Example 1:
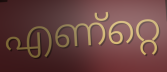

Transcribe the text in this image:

എണ്റ്റെ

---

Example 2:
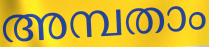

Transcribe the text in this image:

അമ്പതാം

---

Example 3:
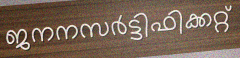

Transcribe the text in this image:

ജനനസർട്ടിഫിക്കറ്റ്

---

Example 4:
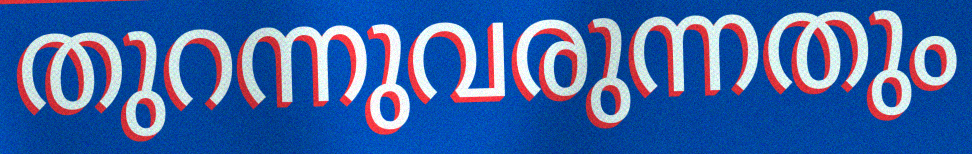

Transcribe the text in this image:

തുറന്നുവരുന്നതും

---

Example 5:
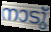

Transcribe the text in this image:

നാടു്